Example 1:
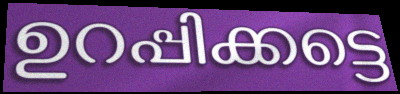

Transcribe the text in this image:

ഉറപ്പിക്കട്ടെ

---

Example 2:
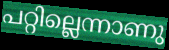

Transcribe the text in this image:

പറ്റില്ലെന്നാണു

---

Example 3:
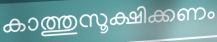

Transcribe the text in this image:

കാത്തുസൂക്ഷിക്കണം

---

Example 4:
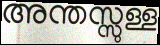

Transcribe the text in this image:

അന്തസ്സുള്ള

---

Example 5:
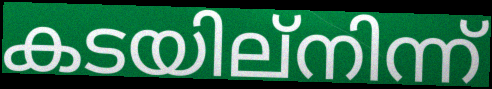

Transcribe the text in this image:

കടയില്നിന്ന്